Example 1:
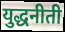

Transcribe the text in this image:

युद्धनीती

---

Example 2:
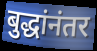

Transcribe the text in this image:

बुद्धांनंतर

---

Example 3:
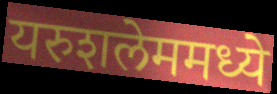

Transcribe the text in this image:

यरुशलेममध्ये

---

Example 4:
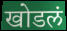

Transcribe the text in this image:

खोडलं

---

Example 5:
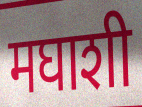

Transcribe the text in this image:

मघाशी